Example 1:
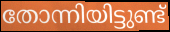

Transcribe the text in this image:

തോന്നിയിട്ടുണ്ട്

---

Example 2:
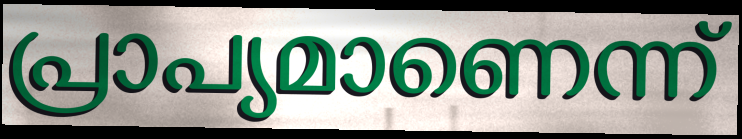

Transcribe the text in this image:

പ്രാപ്യമാണെന്ന്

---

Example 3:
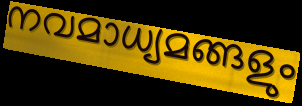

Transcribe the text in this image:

നവമാധ്യമങ്ങളും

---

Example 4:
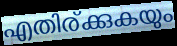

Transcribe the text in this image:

എതിര്ക്കുകയും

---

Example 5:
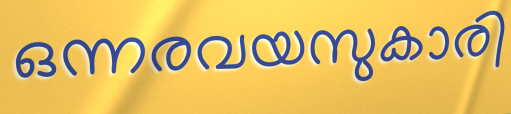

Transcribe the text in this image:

ഒന്നരവയസുകാരി